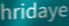
hridaye